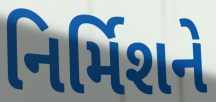
નિર્મિશને